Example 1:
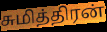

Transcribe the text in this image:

சுமித்திரன்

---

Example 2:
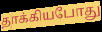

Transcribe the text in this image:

தாக்கியபோது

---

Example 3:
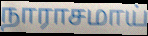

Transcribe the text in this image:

நாராசமாய்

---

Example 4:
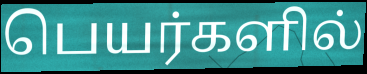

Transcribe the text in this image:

பெயர்களில்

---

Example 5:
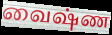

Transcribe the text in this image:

வைஷ்ண